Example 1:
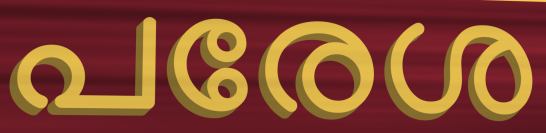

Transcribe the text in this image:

പരേശ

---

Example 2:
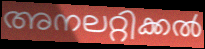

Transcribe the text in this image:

അനലറ്റിക്കൽ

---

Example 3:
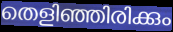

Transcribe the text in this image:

തെളിഞ്ഞിരിക്കും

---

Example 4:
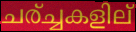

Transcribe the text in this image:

ചര്ച്ചകളില്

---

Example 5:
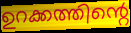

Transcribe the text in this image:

ഉറക്കത്തിന്റെ